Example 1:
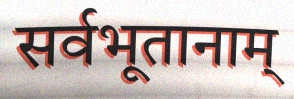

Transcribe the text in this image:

सर्वभूतानाम्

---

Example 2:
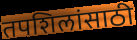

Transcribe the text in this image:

तपशिलांसाठी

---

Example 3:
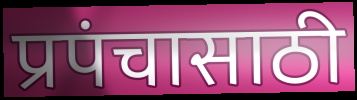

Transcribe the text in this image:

प्रपंचासाठी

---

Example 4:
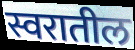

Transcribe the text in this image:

स्वरातील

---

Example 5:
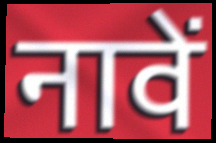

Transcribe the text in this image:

नावें